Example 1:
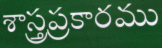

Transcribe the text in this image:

శాస్త్రప్రకారము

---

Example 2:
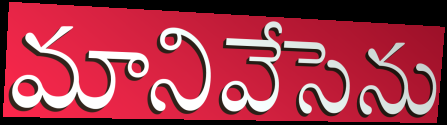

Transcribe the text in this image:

మానివేసెను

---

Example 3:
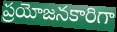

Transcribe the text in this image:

ప్రయోజనకారిగా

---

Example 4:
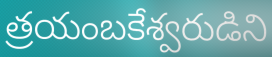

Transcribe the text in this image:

త్రయంబకేశ్వరుడిని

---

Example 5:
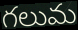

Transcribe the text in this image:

గలుమ